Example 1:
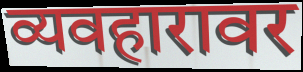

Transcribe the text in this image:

व्यवहारावर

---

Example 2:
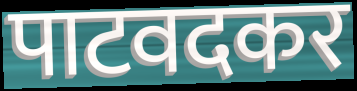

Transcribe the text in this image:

पाटवदकर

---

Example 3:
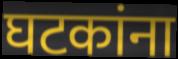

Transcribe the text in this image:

घटकांना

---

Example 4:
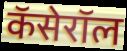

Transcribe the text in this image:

कॅसेरॉल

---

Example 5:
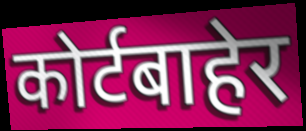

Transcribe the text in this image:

कोर्टबाहेर